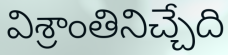
విశ్రాంతినిచ్చేది